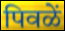
पिवळें